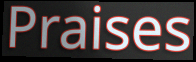
Praises